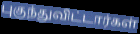
புகுந்துவிட்டார்கள்